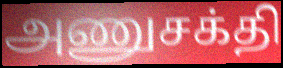
அணுசக்தி